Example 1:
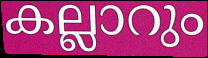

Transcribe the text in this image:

കല്ലാറും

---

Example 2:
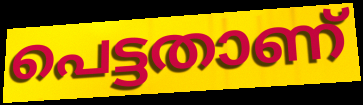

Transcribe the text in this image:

പെട്ടതാണ്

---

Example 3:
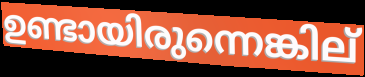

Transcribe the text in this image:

ഉണ്ടായിരുന്നെങ്കില്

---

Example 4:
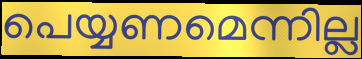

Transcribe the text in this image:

പെയ്യണമെന്നില്ല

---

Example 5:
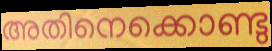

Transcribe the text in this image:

അതിനെക്കൊണ്ടു